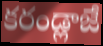
కరండ్లాజే